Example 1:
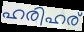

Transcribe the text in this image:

ഹരിഹര്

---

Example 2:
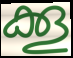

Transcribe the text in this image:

ക്കൂ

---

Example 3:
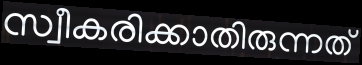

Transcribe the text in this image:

സ്വീകരിക്കാതിരുന്നത്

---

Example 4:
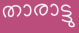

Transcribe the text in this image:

താരാട്ടു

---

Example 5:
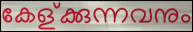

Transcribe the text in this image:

കേള്ക്കുന്നവനും